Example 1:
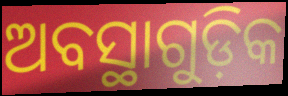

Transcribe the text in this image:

ଅବସ୍ଥାଗୁଡ଼ିକ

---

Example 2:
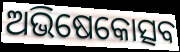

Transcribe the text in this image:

ଅଭିଷେକୋତ୍ସବ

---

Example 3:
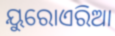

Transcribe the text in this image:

ୟୁରୋଏରିଆ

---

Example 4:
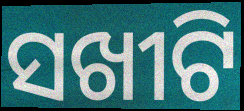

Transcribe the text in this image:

ସଖୀଟି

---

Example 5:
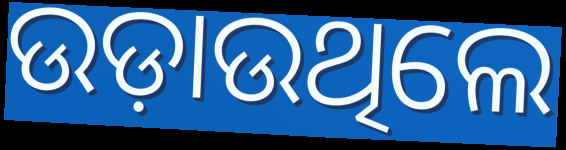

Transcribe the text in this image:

ଉଡ଼ାଉଥିଲେ